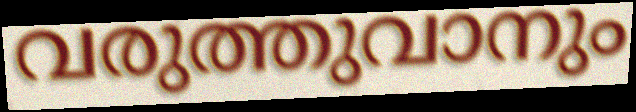
വരുത്തുവാനും